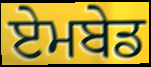
ਏਮਬੇਡ